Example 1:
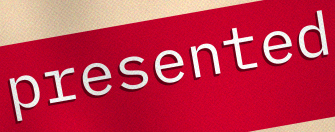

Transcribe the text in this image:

presented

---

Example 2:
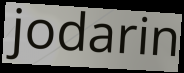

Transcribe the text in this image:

jodarin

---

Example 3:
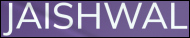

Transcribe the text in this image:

JAISHWAL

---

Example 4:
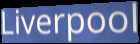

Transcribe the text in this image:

Liverpool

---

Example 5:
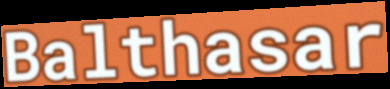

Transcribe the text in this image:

Balthasar